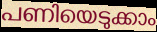
പണിയെടുക്കാം